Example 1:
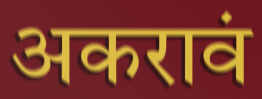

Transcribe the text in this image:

अकरावं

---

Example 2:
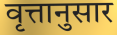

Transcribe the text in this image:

वृत्तानुसार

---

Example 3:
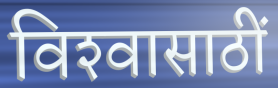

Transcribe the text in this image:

विश्वासाठीं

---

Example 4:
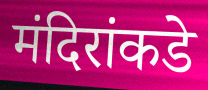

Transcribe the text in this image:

मंदिरांकडे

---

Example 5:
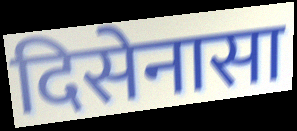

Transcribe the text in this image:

दिसेनासा